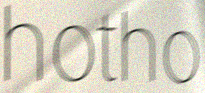
hotho